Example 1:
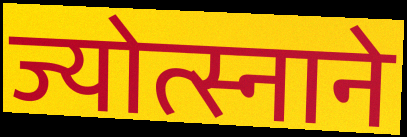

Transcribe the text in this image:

ज्योत्स्नाने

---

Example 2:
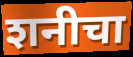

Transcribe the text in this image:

शनीचा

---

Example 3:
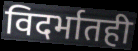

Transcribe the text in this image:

विदर्भातही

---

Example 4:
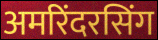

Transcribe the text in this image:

अमरिंदरसिंग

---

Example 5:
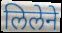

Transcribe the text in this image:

लिलेने